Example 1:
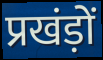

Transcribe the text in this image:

प्रखंड़ों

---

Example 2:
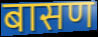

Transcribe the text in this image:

बासण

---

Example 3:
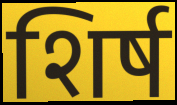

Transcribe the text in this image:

शिर्ष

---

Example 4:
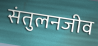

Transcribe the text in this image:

संतुलनजीव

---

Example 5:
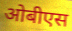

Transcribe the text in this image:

ओबीएस